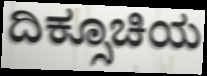
ದಿಕ್ಸೂಚಿಯ